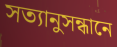
সত্যানুসন্ধানে